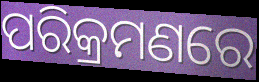
ପରିକ୍ରମଣରେ